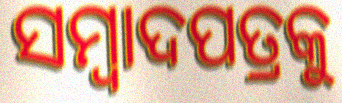
ସମ୍ବାଦପତ୍ରକୁ